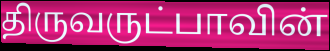
திருவருட்பாவின்